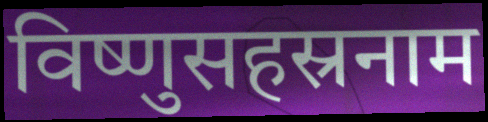
विष्णुसहस्रनाम